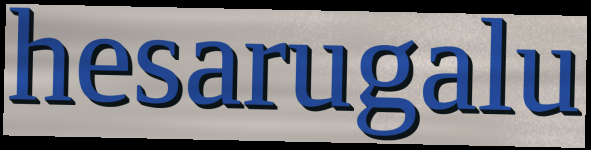
hesarugalu